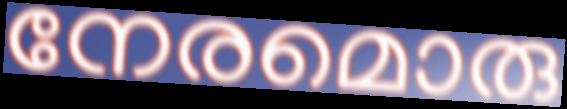
നേരമൊരു